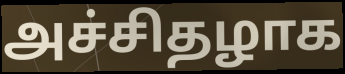
அச்சிதழாக